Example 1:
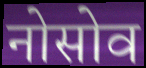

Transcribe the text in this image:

नोसोव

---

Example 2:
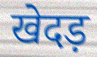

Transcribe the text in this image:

खेदड़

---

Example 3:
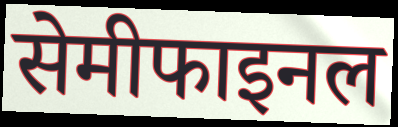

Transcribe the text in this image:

सेमीफाइनल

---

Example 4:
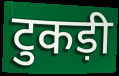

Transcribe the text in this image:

टुकड़ी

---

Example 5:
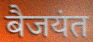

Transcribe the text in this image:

बैजयंत